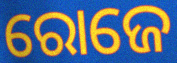
ରୋଜେ